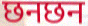
छनछन